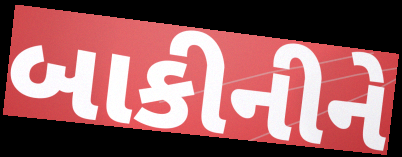
બાકીનીને